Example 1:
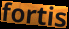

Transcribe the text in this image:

fortis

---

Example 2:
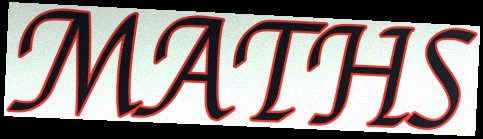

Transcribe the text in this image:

MATHS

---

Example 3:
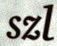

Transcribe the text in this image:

szl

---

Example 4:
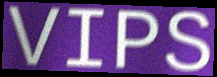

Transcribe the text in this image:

VIPS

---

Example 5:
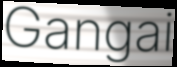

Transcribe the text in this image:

Gangai